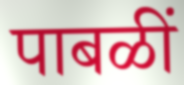
पाबळीं